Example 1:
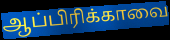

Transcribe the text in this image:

ஆப்பிரிக்காவை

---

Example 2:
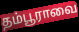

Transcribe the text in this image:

தம்பூராவை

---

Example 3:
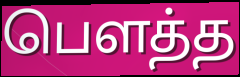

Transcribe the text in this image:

பெளத்த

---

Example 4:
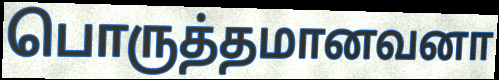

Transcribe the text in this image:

பொருத்தமானவனா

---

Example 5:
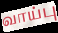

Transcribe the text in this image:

வாய்பு